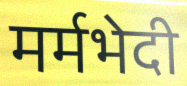
मर्मभेदी